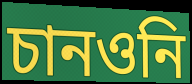
চানওনি